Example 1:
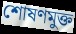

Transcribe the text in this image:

শোষণমুক্ত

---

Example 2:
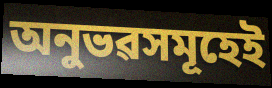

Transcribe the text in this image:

অনুভৱসমূহেই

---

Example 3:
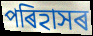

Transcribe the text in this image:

পৰিহাসৰ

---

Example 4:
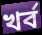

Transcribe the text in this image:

খৰ্ব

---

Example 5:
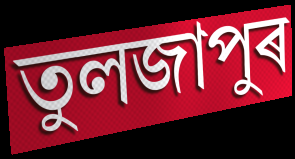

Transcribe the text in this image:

তুলজাপুৰ